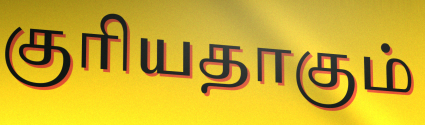
குரியதாகும்